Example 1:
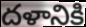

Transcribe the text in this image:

దళానికి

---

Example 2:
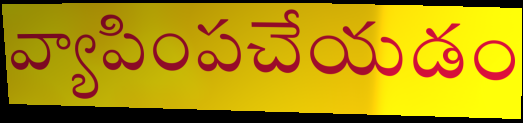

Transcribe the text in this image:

వ్యాపింపచేయడం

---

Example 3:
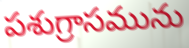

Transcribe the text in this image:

పశుగ్రాసమును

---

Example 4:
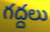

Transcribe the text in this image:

గద్దలు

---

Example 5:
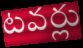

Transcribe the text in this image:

టవర్లు